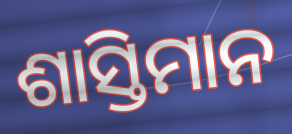
ଶାସ୍ତିମାନ